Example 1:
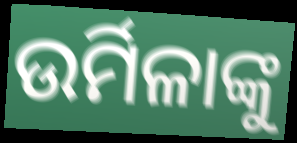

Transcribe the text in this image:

ଉର୍ମିଳାଙ୍କୁ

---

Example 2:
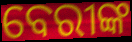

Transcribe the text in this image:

ବେରୀଙ୍କ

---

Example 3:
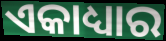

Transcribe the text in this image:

ଏକାଧ୍ୟାର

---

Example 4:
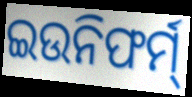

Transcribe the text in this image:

ଇଉନିଫର୍ମ୍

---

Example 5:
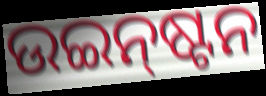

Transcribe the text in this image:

ଉଇନ୍‌ଷ୍ଟନ